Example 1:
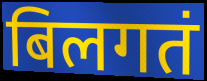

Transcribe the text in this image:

बिलगतं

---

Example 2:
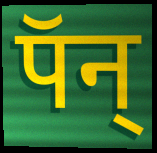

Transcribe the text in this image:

पॅन्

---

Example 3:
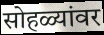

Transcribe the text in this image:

सोहळ्यांवर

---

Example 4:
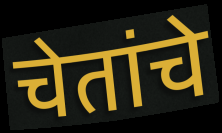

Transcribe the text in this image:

चेतांचे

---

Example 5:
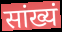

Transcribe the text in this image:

सांख्यं